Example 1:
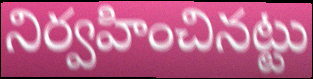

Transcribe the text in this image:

నిర్వహించినట్టు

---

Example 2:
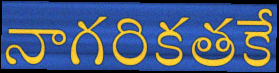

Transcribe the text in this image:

నాగరికతకే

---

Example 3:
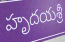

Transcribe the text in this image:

హృదయశ్రీ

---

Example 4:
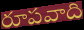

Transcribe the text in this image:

రూపవాది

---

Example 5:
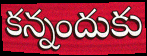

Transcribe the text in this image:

కన్నందుకు